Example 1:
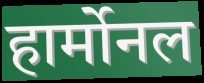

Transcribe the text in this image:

हार्मोनल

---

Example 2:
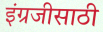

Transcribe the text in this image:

इंग्रजीसाठी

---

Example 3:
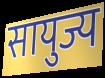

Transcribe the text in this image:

सायुज्य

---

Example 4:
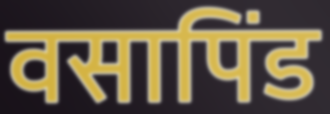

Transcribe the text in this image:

वसापिंड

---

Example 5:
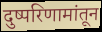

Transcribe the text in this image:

दुष्परिणामांतून